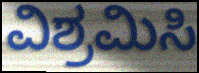
ವಿಶ್ರಮಿಸಿ